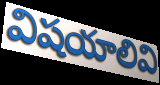
విషయాలివి